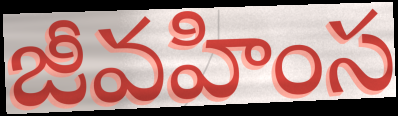
జీవహింస